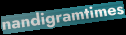
nandigramtimes